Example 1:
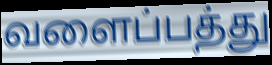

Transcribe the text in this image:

வளைப்பத்து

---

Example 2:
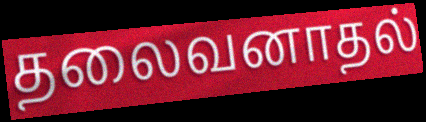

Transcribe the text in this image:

தலைவனாதல்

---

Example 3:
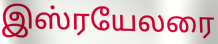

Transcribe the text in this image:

இஸ்ரயேலரை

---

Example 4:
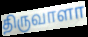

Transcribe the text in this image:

திருவாளா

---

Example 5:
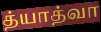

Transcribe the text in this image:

த்யாத்வா